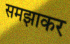
समझाकर